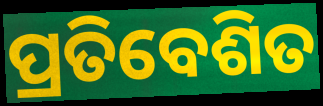
ପ୍ରତିବେଶିତ